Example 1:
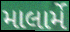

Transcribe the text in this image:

માલાર્મે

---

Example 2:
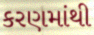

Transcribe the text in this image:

કરણમાંથી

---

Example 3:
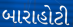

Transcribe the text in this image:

બારાહોટી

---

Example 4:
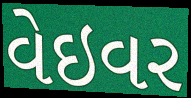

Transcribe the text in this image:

વેઇવર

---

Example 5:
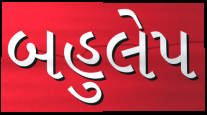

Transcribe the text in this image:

બહુલેપ